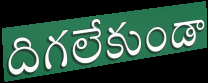
దిగలేకుండా